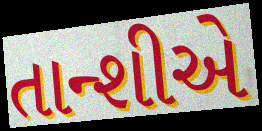
તાન્શીએ